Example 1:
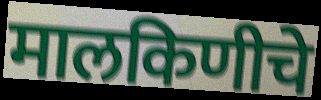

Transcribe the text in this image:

मालकिणीचे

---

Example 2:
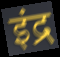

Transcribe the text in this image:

इंद्र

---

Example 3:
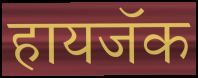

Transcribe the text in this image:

हायजॅक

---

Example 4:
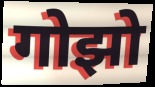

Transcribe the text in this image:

गोझो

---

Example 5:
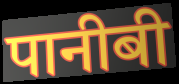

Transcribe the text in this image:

पानीबी